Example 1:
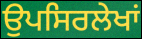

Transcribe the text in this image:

ਉਪਸਿਰਲੇਖਾਂ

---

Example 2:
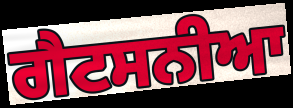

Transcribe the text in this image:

ਗੈਟਸਨੀਆ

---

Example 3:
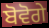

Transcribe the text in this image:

ਬੋਵੋਗੇ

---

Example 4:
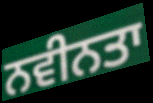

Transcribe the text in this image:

ਨਵੀਨਤਾ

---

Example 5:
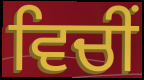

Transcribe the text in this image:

ਵਿਚੀਂ